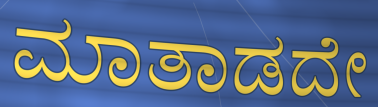
ಮಾತಾಡದೇ